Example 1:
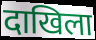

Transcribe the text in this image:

दाखिला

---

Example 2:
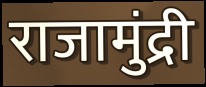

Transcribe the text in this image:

राजामुंद्री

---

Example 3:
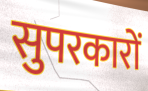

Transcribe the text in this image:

सुपरकारों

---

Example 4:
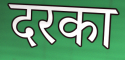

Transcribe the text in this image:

दरका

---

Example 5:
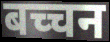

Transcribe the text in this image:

बच्चन